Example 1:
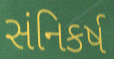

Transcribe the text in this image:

સંનિકર્ષ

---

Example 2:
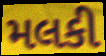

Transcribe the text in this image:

મલકી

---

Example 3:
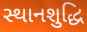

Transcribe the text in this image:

સ્થાનશુદ્ધિ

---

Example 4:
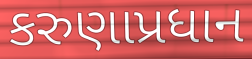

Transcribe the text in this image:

કરુણાપ્રધાન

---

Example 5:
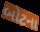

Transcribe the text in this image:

બોટના